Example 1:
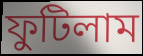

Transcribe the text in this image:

ফুটিলাম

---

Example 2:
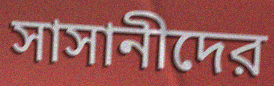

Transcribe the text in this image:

সাসানীদের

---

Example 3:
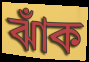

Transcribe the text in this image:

ঝাঁক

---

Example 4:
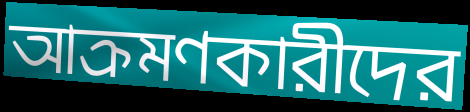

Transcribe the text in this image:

আক্রমণকারীদের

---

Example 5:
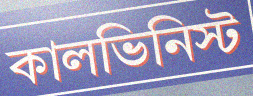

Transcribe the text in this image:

কালভিনিস্ট